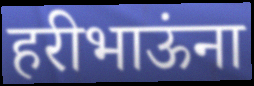
हरीभाऊंना